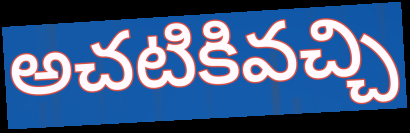
అచటికివచ్చి